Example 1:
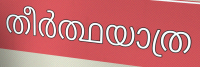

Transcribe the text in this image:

തീർത്ഥയാത്ര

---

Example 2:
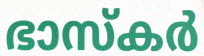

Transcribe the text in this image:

ഭാസ്കർ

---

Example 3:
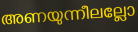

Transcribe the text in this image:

അണയുന്നീലല്ലോ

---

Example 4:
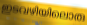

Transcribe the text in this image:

ഇടവഴിയിലൊരു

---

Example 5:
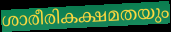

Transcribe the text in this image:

ശാരീരികക്ഷമതയും